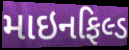
માઇનફિલ્ડ